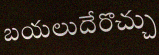
బయలుదేరొచ్చు